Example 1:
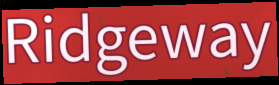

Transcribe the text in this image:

Ridgeway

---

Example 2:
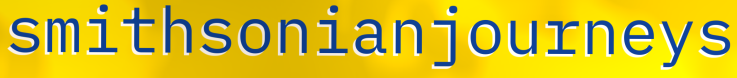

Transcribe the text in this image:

smithsonianjourneys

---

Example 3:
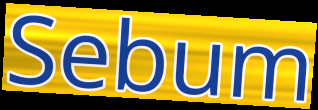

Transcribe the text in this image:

Sebum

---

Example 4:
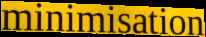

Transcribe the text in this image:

minimisation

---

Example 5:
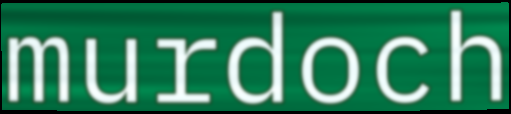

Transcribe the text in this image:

murdoch